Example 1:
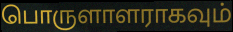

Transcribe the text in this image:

பொருளாளராகவும்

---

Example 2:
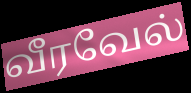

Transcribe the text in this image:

வீரவேல்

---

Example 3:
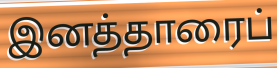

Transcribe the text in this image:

இனத்தாரைப்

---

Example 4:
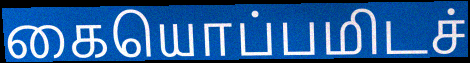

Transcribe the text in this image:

கையொப்பமிடச்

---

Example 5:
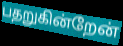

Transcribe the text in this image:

பதறுகின்றேன்